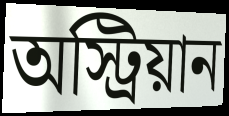
অস্ট্রিয়ান